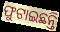
ଫୁଟାଇଛନ୍ତି